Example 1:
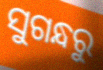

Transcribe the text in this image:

ସୁଗନ୍ଧରୁ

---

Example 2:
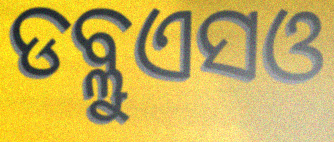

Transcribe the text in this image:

ଡବ୍ଲୁଏସଓ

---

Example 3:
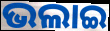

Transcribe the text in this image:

ଭଲାଇ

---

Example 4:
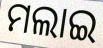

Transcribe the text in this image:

ମଲାଇ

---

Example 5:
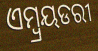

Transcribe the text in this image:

ଏମ୍ବ୍ରୟଡରୀ